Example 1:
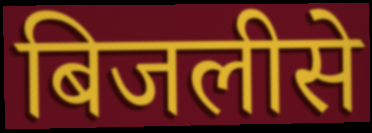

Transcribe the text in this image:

बिजलीसे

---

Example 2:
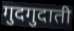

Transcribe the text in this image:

गुदगुदाती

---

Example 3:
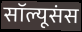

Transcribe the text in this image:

सॉल्यूसंस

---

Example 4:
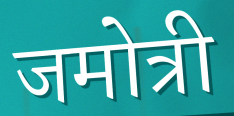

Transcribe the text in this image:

जमोत्री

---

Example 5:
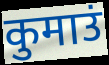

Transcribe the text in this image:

कुमाउं